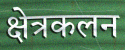
क्षेत्रकलन